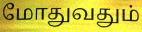
மோதுவதும்